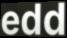
edd